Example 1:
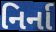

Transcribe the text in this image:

નિર્ના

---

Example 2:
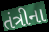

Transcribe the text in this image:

તંત્રીના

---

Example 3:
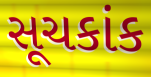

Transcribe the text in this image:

સૂચકાંક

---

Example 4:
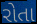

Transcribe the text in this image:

રોતા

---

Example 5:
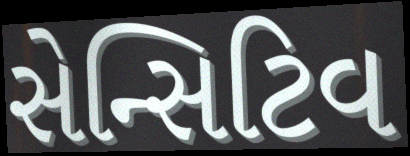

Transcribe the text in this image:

સેન્સિટિવ